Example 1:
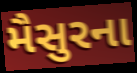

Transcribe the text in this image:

મૈસુરના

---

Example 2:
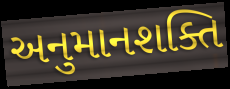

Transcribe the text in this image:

અનુમાનશક્તિ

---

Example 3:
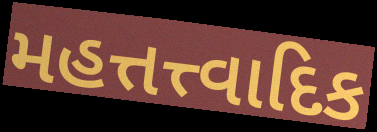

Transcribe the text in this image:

મહત્તત્ત્વાદિક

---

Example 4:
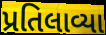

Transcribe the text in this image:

પ્રતિલાવ્યા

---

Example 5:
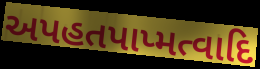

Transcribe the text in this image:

અપહતપાપ્મત્વાદિ